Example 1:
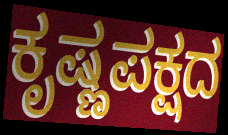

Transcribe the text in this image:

ಕೃಷ್ಣಪಕ್ಷದ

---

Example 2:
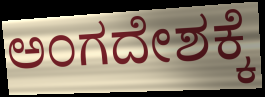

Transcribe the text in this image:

ಅಂಗದೇಶಕ್ಕೆ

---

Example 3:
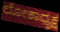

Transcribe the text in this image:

ಲೋಕಾಧ್ಯಕ್ಷ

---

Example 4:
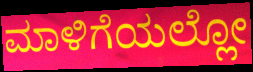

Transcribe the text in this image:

ಮಾಳಿಗೆಯಲ್ಲೋ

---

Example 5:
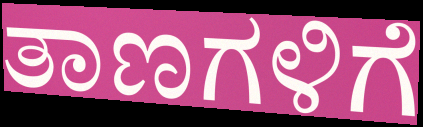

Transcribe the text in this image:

ತಾಣಗಳಿಗೆ